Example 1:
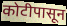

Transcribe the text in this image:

कोटीपासून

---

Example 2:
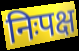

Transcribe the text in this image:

निःपक्ष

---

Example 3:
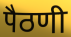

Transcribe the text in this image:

पैठणी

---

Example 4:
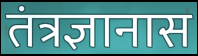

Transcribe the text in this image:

तंत्रज्ञानास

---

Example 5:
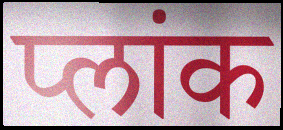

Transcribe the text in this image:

प्लांक